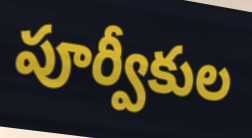
పూర్వీకుల